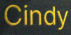
Cindy